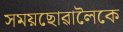
সময়ছোৱালৈকে